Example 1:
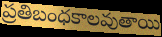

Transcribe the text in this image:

ప్రతిబంధకాలవుతాయి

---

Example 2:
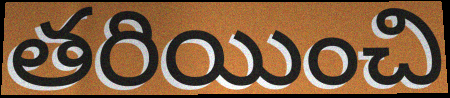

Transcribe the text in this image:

తరియించి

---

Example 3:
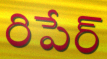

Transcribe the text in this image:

రిపేర్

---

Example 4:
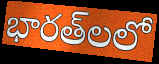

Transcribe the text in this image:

భారత్‌లలో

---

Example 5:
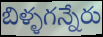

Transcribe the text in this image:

బిళ్ళగన్నేరు